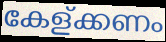
കേള്ക്കണം